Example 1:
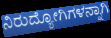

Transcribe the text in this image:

ನಿರುದ್ಯೋಗಿಗಳನ್ನಾಗಿ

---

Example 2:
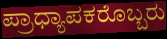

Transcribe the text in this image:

ಪ್ರಾಧ್ಯಾಪಕರೊಬ್ಬರು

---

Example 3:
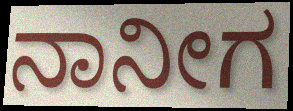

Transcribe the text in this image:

ನಾನೀಗ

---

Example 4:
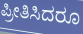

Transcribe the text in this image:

ಪ್ರೀತಿಸಿದರೂ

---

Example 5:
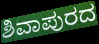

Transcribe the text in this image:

ಶಿವಾಪುರದ